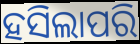
ହସିଲାପରି